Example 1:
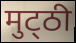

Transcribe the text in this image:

मुट्‌ठी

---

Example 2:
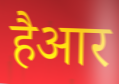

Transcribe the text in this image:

हैआर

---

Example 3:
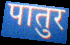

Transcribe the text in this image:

पातुर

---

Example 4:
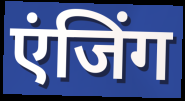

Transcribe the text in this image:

एंजिंग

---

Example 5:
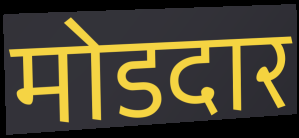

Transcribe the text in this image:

मोडदार